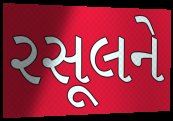
રસૂલને